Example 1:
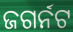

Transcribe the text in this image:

ଜଗର୍ନଟ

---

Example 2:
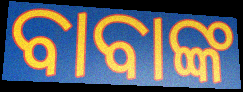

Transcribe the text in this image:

ବାବାଙ୍କ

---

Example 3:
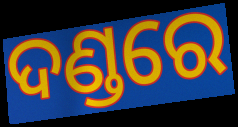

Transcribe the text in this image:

ଦଣ୍ଡରେ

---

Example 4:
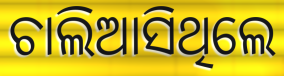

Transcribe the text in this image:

ଚାଲିଆସିଥିଲେ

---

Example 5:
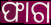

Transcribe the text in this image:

ଫାଗ